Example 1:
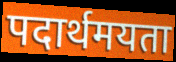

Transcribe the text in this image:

पदार्थमयता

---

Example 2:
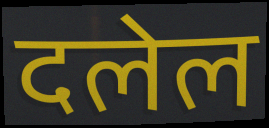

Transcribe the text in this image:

दलेल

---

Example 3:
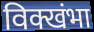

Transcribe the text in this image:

विक्खंभा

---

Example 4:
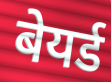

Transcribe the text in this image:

बेयर्ड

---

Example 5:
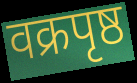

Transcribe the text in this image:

वक्रपृष्ठ